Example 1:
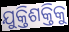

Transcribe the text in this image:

ଯୁକ୍ତିଶକ୍ତିକୁ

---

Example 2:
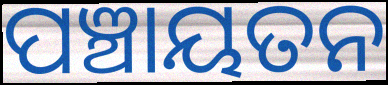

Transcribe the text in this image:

ପଞ୍ଚାୟତନ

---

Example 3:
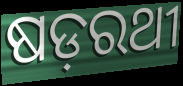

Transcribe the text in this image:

ଷଡ଼ରଥୀ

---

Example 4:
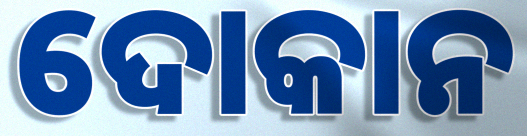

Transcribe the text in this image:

ଦୋକାନ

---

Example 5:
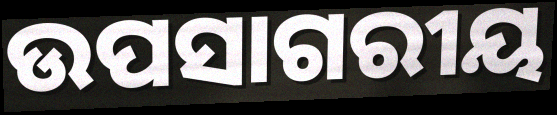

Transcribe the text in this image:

ଉପସାଗରୀୟ